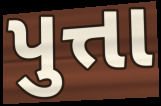
પુત્તા